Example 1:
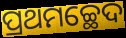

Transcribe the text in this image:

ପ୍ରଥମଚ୍ଛେଦ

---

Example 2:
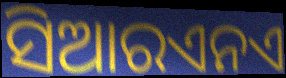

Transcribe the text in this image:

ସିଆରଏନଏ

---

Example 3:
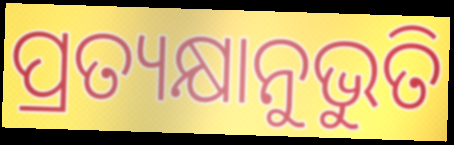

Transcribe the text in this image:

ପ୍ରତ୍ୟକ୍ଷାନୁଭୁତି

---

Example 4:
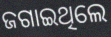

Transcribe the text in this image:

ଜଗାଇଥିଲେ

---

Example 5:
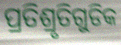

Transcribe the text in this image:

ପ୍ରତିଶ୍ରୃତିଗୁଡିକ